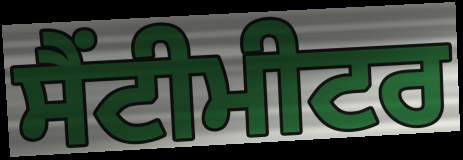
ਸੈਂਟੀਮੀਟਰ